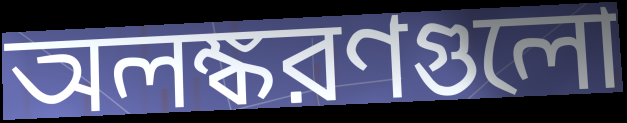
অলঙ্করণগুলো